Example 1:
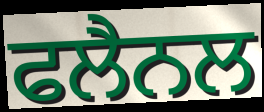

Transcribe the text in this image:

ਫਲੈਨਲ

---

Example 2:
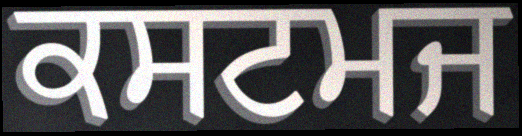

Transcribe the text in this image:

ਕਸਟਮਜ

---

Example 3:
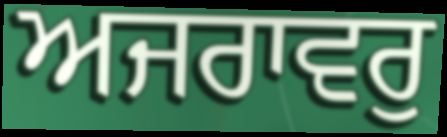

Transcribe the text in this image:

ਅਜਰਾਵਰੁ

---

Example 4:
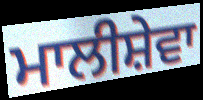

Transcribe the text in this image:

ਮਾਲੀਸ਼ੇਵਾ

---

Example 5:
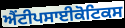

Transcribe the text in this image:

ਐਂਟੀਪਸਾਈਕੋਟਿਕਸ